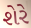
શેરે